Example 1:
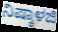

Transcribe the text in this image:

ನಿಷ್ಕಾಳಜಿ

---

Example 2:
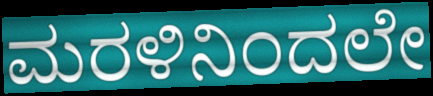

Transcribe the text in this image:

ಮರಳಿನಿಂದಲೇ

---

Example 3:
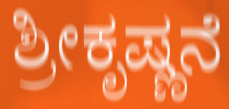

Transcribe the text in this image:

ಶ್ರೀಕೃಷ್ಣನೆ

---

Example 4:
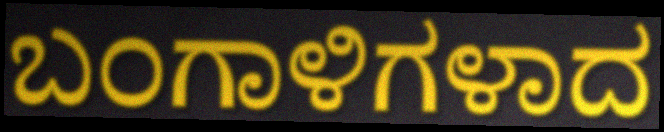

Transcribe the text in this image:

ಬಂಗಾಳಿಗಳಾದ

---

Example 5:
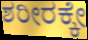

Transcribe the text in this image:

ಶರೀರಕ್ಕೇ